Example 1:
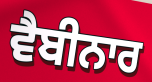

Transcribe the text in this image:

ਵੈਬੀਨਾਰ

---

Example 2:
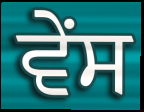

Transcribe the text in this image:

ਵੇਂਸ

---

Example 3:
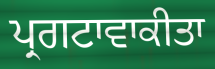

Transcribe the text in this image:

ਪ੍ਰਗਟਾਵਾਕੀਤਾ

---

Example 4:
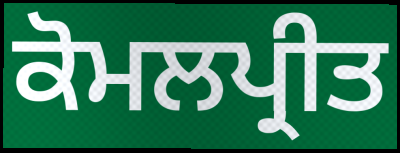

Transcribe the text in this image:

ਕੋਮਲਪ੍ਰੀਤ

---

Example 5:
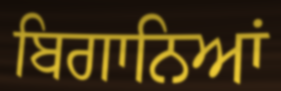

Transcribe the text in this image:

ਬਿਗਾਨਿਆਂ